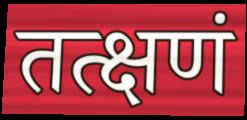
तत्क्षणं